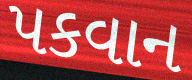
પકવાન